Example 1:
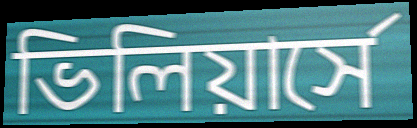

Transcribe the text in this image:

ভিলিয়ার্সে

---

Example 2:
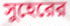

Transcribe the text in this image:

সুহেরের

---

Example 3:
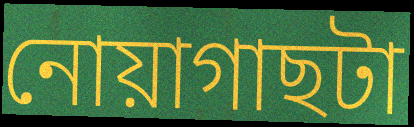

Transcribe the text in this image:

নোয়াগাছটা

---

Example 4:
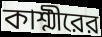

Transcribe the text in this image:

কাশ্মীরের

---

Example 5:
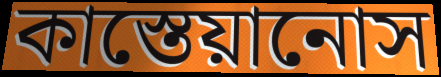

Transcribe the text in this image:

কাস্তেয়ানোস